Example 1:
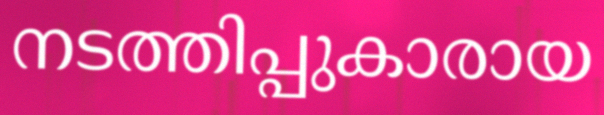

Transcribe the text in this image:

നടത്തിപ്പുകാരായ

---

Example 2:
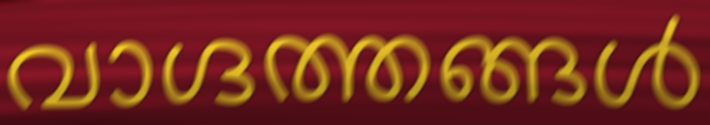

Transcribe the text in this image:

വാഗ്ദത്തങ്ങൾ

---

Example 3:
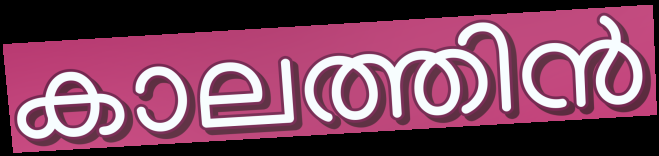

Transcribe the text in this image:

കാലത്തിൻ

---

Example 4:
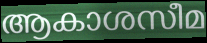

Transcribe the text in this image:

ആകാശസീമ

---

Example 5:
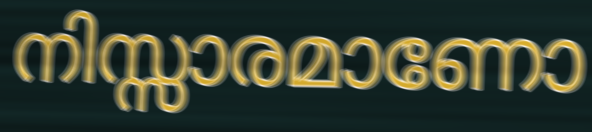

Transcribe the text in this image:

നിസ്സാരമാണോ